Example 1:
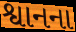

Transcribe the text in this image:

શ્વાનના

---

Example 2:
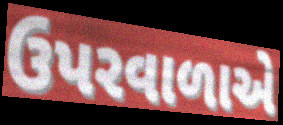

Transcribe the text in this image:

ઉપરવાળાએ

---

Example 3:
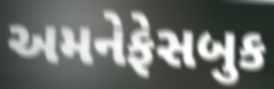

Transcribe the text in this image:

અમનેફેસબુક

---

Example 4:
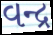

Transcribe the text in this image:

વન્દ્ર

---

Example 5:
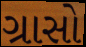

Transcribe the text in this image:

ગ્રાસો